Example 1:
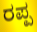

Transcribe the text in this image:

ರಪ್ಪ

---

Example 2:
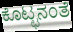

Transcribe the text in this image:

ಕೊಟ್ಟನಂತೆ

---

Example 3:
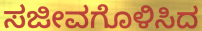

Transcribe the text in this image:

ಸಜೀವಗೊಳಿಸಿದ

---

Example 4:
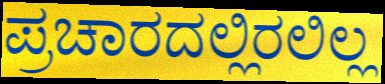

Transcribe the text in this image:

ಪ್ರಚಾರದಲ್ಲಿರಲಿಲ್ಲ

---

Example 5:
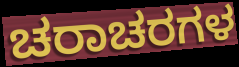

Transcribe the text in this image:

ಚರಾಚರಗಳ